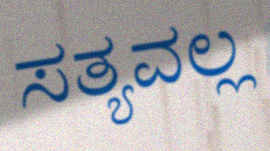
ಸತ್ಯವಲ್ಲ